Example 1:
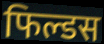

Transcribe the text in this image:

फिल्डस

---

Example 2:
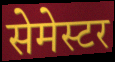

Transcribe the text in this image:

सेमेस्टर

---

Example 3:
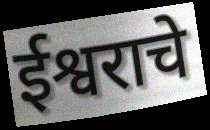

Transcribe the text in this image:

ईश्वराचे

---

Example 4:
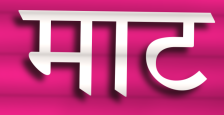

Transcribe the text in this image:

माट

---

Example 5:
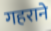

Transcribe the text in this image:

गहराने